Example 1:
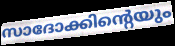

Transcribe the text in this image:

സാദോക്കിന്റെയും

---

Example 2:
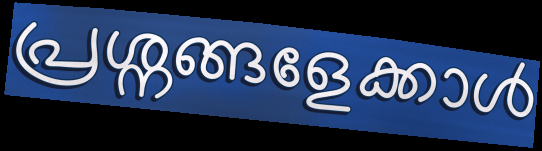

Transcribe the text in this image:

പ്രശ്നങ്ങളേക്കാൾ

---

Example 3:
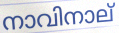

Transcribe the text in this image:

നാവിനാല്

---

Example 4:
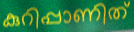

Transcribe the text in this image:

കുറിപ്പാണിത്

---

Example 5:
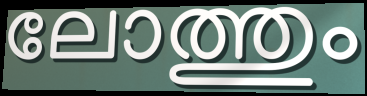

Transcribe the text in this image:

ലോത്തും